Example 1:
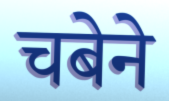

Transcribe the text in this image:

चबेने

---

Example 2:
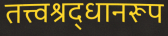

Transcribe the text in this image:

तत्त्वश्रद्धानरूप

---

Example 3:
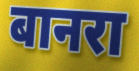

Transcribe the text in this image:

बानरा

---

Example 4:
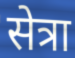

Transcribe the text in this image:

सेत्रा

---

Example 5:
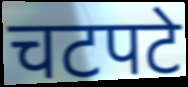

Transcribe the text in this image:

चटपटे